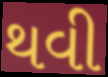
થવી